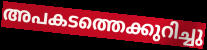
അപകടത്തെക്കുറിച്ചു